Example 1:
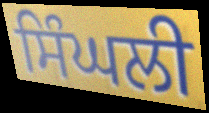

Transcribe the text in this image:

ਸਿੰਘਲੀ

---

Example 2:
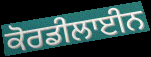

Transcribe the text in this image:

ਕੋਰਡੀਲਾਈਨ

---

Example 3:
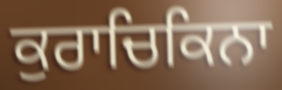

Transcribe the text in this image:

ਕੁਰਾਚਿਕਿਨਾ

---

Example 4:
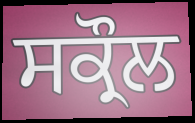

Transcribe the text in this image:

ਸਕ੍ਰੌਲ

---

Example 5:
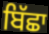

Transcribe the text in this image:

ਬਿੱਛਾ